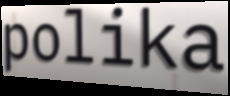
polika